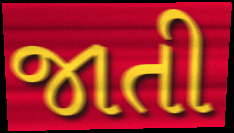
જાતી